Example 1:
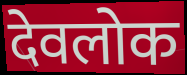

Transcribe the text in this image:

देवलोक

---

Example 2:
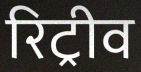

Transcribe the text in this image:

रिट्रीव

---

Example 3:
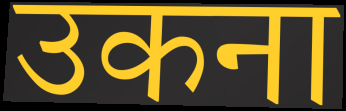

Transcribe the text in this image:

उकना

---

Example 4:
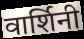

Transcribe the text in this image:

वार्शिनी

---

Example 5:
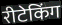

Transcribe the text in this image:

रीटेकिंग